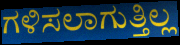
ಗಳಿಸಲಾಗುತ್ತಿಲ್ಲ